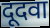
दूदवा